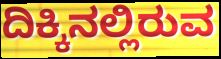
ದಿಕ್ಕಿನಲ್ಲಿರುವ